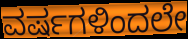
ವರ್ಷಗಳಿಂದಲೇ